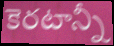
కెరటాన్నీ